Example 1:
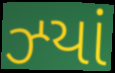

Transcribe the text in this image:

ઝ્યાં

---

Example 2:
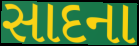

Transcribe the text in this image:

સાદના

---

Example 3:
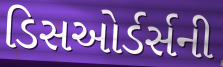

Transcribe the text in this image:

ડિસઓર્ડર્સની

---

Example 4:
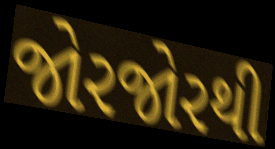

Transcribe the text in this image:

જોરજોરથી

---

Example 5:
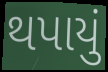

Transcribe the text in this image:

થપાયું